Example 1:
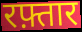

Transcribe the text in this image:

रफ़्तार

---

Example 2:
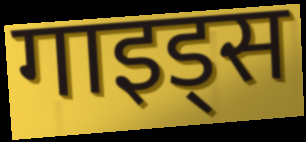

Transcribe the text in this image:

गाइड्स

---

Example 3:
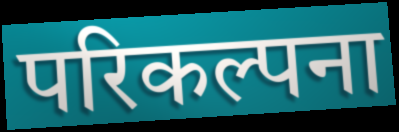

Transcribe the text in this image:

परिकल्पना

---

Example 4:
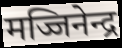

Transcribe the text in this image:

मज्जिनेन्द्र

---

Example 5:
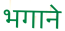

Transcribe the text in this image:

भगाने